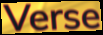
Verse